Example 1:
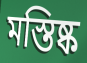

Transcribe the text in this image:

মস্তিষ্ক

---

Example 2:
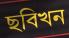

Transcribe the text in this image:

ছবিখন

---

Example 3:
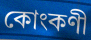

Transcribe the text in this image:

কোংকণী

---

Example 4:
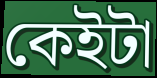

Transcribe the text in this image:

কেইটা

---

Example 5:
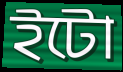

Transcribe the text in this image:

ইটো